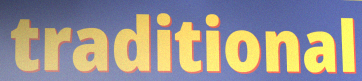
traditional